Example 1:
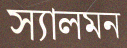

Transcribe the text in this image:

স্যালমন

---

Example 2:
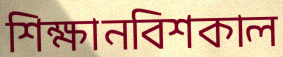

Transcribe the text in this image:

শিক্ষানবিশকাল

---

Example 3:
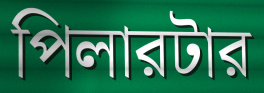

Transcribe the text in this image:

পিলারটার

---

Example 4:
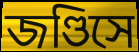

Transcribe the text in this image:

জণ্ডিসে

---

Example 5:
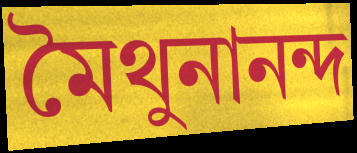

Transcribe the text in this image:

মৈথুনানন্দ